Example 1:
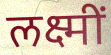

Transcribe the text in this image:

लक्ष्मीं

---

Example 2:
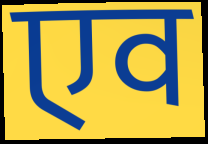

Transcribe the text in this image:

एव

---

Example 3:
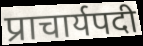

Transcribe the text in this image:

प्राचार्यपदी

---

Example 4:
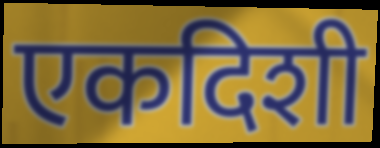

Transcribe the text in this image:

एकदिशी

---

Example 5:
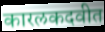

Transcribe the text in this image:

कारलकदवीत